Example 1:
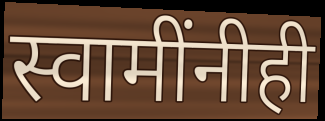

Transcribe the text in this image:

स्वामींनीही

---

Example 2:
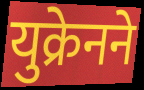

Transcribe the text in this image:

युक्रेनने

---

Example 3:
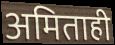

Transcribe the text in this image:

अमिताही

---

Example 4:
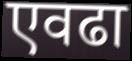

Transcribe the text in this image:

एवढा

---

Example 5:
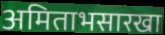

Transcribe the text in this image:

अमिताभसारखा